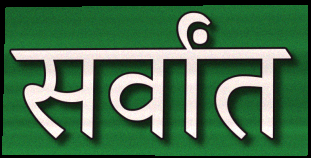
सर्वांत